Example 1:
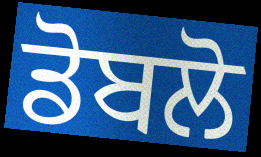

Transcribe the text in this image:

ਡੋਬਲੋ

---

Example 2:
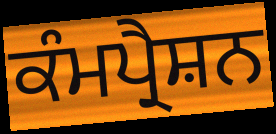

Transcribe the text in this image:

ਕੰਮਪ੍ਰੈਸ਼ਨ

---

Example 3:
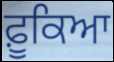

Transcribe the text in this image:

ਫ਼ੂਕਿਆ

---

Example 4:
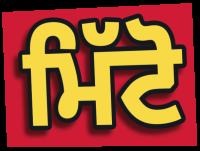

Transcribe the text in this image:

ਮਿੱਟੋ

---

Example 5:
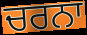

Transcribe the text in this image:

ਚਰਨਾ